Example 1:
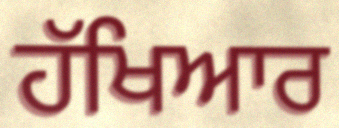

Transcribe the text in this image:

ਹੱਖਿਆਰ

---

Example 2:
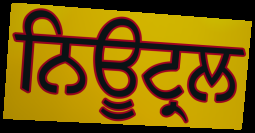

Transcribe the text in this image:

ਨਿਊਟ੍ਰਲ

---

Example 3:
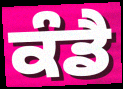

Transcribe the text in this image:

ਕੰਡੈ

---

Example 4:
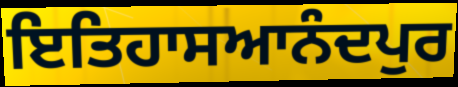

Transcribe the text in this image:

ਇਤਿਹਾਸਆਨੰਦਪੁਰ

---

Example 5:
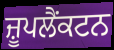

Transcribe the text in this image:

ਜ਼ੂਪਲੈਂਕਟਨ